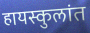
हायस्कुलांत